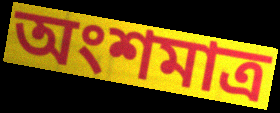
অংশমাত্র